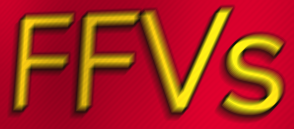
FFVs